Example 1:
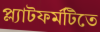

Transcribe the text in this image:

প্ল্যাটফর্মটিতে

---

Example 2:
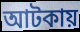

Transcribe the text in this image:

আটকায়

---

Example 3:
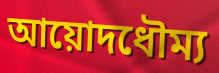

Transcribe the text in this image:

আয়োদধৌম্য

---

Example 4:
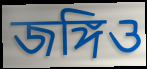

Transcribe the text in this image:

জঙ্গিও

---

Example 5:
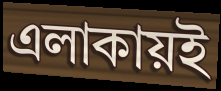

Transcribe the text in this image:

এলাকায়ই